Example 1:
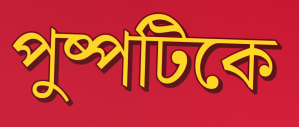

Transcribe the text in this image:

পুষ্পটিকে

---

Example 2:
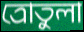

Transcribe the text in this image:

ত্রোতুলা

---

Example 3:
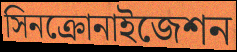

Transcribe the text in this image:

সিনক্রোনাইজেশন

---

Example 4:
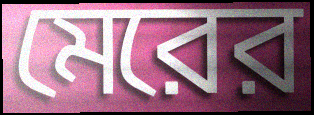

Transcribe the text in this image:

মেরের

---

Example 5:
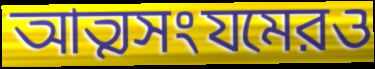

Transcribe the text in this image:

আত্মসংযমেরও